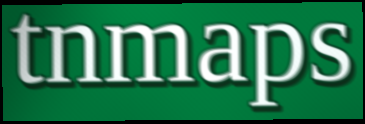
tnmaps